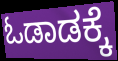
ಓಡಾಡಕ್ಕೆ